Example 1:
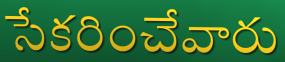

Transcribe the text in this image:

సేకరించేవారు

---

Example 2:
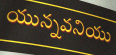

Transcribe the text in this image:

యున్నవనియు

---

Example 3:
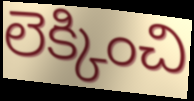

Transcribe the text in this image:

లెక్కించి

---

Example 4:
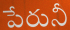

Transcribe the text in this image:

పేరునీ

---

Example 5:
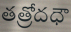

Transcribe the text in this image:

తత్రోదధౌ